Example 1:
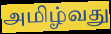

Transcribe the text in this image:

அமிழ்வது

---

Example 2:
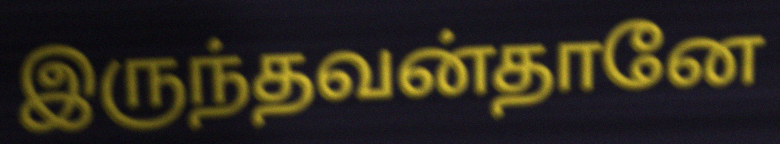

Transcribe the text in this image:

இருந்தவன்தானே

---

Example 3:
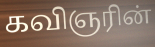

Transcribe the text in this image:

கவிஞரின்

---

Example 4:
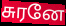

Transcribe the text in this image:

சுரனே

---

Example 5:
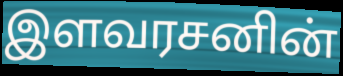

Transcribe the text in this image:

இளவரசனின்